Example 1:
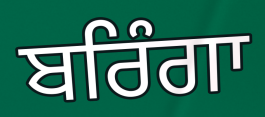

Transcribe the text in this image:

ਬਰਿੰਗਾ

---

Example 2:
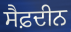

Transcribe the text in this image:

ਸੈਫ਼ਦੀਨ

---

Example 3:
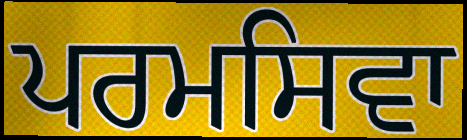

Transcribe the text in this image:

ਪਰਮਸਿਵਾ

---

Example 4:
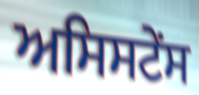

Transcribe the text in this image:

ਅਸਿਸਟੇਂਸ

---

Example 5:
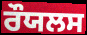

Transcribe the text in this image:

ਰੌਯਲਸ